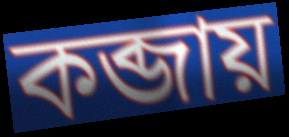
কব্জায়